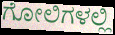
ಗೋಲಿಗಳಲ್ಲಿ